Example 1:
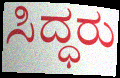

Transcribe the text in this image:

ಸಿದ್ಧರು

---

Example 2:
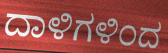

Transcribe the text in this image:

ದಾಳಿಗಳಿಂದ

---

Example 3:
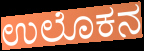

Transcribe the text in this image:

ಉಲೊಕನ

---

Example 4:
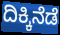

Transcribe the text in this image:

ದಿಕ್ಕಿನೆಡೆ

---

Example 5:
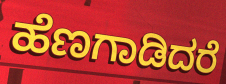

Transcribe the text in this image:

ಹೆಣಗಾಡಿದರೆ